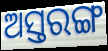
ଅସ୍ତରଙ୍ଗ